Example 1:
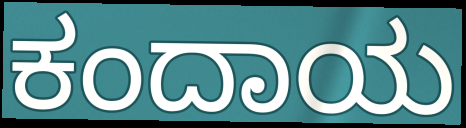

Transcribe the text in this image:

ಕಂದಾಯ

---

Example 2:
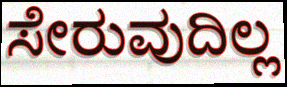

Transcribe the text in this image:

ಸೇರುವುದಿಲ್ಲ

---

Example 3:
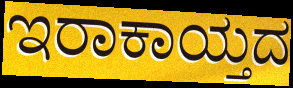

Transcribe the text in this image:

ಇರಾಕಾಯ್ತದ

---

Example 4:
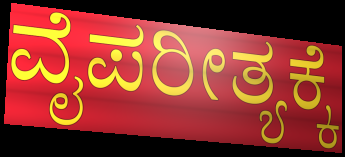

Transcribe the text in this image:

ವೈಪರೀತ್ಯಕ್ಕೆ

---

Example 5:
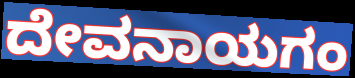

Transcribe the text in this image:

ದೇವನಾಯಗಂ